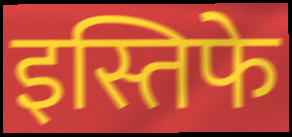
इस्तिफे